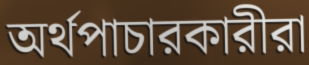
অর্থপাচারকারীরা